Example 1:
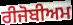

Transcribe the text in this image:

ਰੀਜੋਬੀਅਮ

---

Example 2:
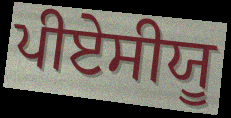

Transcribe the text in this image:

ਪੀਏਸੀਯੂ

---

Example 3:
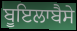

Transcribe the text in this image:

ਬੂਇਲਾਬੈਸੇ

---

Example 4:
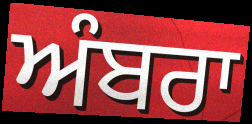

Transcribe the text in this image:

ਅੰਬਰਾ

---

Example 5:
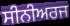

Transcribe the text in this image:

ਸੀਨੀਅਰਜ